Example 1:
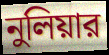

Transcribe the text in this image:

নুলিয়ার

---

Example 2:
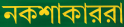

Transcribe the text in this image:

নকশাকাররা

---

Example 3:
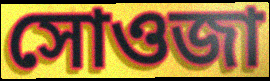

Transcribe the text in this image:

সোওজা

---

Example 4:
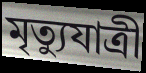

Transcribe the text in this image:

মৃত্যুযাত্রী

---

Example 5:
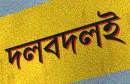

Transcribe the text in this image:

দলবদলই